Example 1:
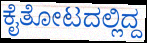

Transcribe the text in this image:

ಕೈತೋಟದಲ್ಲಿದ್ದ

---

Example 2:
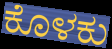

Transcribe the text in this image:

ಕೊಳಕು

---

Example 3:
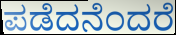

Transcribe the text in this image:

ಪಡೆದನೆಂದರೆ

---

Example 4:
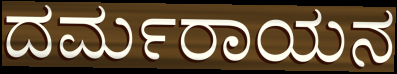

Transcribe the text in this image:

ದರ್ಮರಾಯನ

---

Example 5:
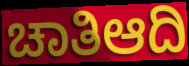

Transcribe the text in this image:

ಚಾತಿಆದಿ